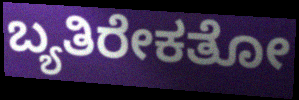
ಬ್ಯತಿರೇಕತೋ